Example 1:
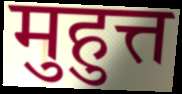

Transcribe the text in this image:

मुहुत्त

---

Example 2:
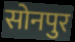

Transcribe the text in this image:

सोनपुर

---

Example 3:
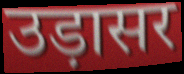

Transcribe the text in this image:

उड़ासर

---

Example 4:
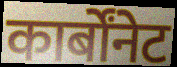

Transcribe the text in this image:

कार्बोंनेट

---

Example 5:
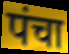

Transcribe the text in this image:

पंचा